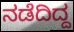
ನಡೆದಿದ್ದ